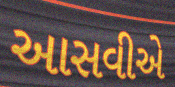
આસવીએ